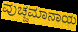
ವುಚ್ಚಮಾನಾಯ